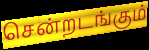
சென்றடங்கும்